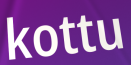
kottu